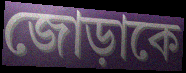
জোড়াকে